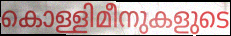
കൊള്ളിമീനുകളുടെ